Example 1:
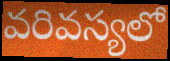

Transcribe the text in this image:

వరివస్యలో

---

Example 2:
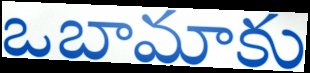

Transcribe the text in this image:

ఒబామాకు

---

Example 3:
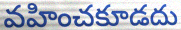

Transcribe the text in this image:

వహించకూడదు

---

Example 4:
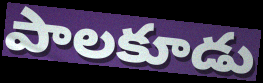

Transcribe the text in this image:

పాలకూడు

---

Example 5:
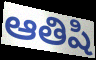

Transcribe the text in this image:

ఆతిషి